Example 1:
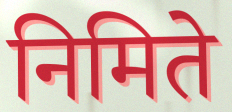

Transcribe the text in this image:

निमिते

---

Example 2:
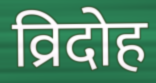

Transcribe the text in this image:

व्रिदोह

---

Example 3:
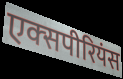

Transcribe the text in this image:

एक्‍सपीरियंस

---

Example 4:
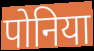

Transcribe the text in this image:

पोनिया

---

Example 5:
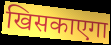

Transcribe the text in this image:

खिसकाएगा